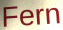
Fern